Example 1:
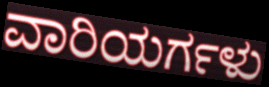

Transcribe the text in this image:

ವಾರಿಯರ್ಗಳು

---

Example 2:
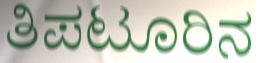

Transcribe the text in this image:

ತಿಪಟೂರಿನ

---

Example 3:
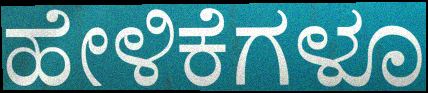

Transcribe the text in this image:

ಹೇಳಿಕೆಗಳೂ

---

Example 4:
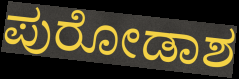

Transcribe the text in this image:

ಪುರೋಡಾಶ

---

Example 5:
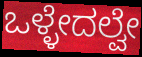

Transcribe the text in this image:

ಒಳ್ಳೇದಲ್ವೇ